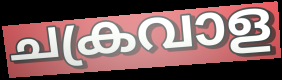
ചക്രവാള